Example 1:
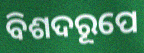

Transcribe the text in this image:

ବିଶଦରୂପେ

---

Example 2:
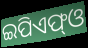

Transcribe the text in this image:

ଇପିଏଫ୍ଓ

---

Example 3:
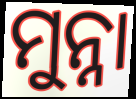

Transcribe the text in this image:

ମୁନ୍ନା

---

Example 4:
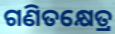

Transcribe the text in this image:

ଗଣିତକ୍ଷେତ୍ର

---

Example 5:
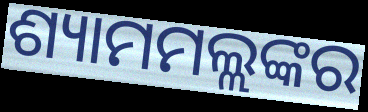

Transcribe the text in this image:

ଶ୍ୟାମମଲ୍ଲଙ୍କର